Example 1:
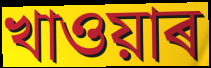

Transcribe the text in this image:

খাওয়াৰ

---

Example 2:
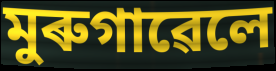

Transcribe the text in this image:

মুৰুগাৱেলে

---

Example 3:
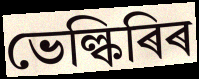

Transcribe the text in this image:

ভেল্কিৰিৰ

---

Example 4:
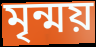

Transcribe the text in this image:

মৃন্ময়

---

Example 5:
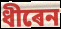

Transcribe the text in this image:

ধীৰেন